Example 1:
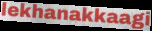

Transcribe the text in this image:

lekhanakkaagi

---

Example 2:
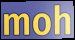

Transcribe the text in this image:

moh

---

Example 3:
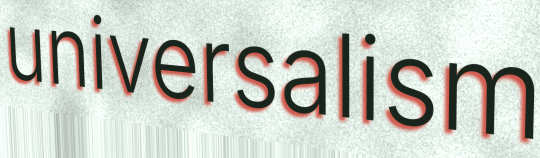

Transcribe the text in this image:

universalism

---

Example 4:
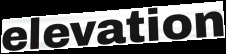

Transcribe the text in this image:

elevation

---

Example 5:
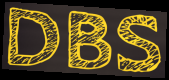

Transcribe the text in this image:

DBS